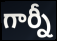
గార్నీ